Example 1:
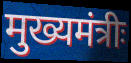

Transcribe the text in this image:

मुख्यमंत्रीः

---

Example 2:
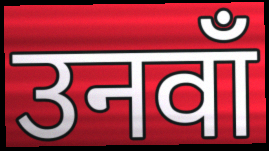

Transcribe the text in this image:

उनवाँ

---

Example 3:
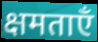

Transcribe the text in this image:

क्षमताएँ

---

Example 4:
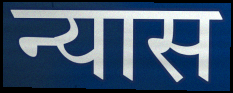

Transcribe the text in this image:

न्यास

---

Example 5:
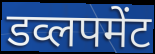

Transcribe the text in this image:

डव्लपमेंट